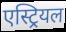
एस्ट्रियल